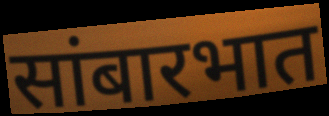
सांबारभात